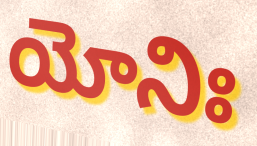
యోనిః